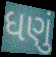
ધણું